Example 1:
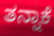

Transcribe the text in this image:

ತನ್ನಾಕೆ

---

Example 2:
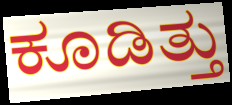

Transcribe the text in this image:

ಕೂಡಿತ್ತು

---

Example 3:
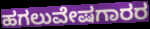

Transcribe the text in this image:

ಹಗಲುವೇಷಗಾರರ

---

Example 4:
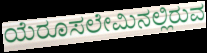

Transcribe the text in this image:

ಯೆರೂಸಲೇಮಿನಲ್ಲಿರುವ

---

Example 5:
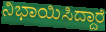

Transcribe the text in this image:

ನಿಭಾಯಿಸಿದ್ದಾರೆ